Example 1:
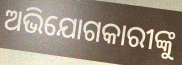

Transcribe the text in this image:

ଅଭିଯୋଗକାରୀଙ୍କୁ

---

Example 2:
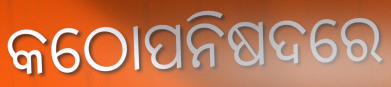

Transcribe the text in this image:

କଠୋପନିଷଦରେ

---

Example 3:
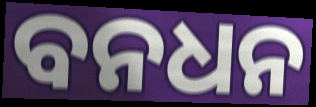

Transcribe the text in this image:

ବନଧନ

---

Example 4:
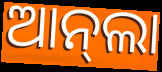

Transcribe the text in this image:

ଆନ୍‌ଲା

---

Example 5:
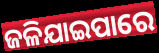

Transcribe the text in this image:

ଜଳିଯାଇପାରେ